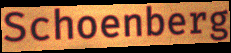
Schoenberg